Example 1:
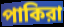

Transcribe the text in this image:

পাকিরা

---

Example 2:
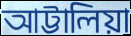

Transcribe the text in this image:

আট্টালিয়া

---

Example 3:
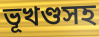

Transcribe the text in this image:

ভূখণ্ডসহ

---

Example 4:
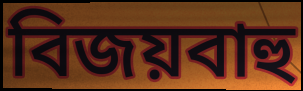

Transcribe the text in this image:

বিজয়বাহু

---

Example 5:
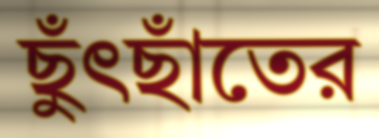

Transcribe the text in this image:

ছুঁৎছাঁতের